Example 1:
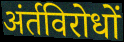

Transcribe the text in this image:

अंर्तविरोधों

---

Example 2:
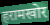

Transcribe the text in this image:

हरामखोर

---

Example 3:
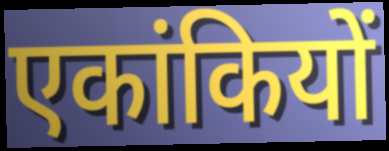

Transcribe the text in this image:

एकांकियों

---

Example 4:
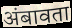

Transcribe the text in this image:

अंबावता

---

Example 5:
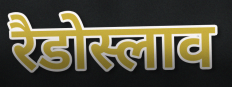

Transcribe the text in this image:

रैडोस्लाव